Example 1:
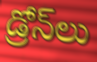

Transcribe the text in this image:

డ్రోన్‌లు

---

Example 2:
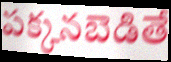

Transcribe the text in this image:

పక్కనబెడితే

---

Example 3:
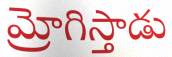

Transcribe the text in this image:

మ్రోగిస్తాడు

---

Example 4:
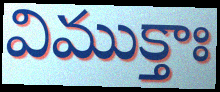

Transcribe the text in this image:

విముక్తాః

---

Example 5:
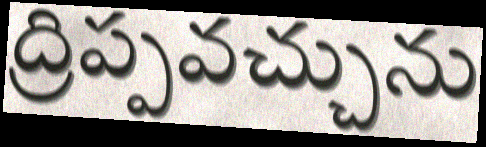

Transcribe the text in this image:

ద్రిప్పవచ్చును